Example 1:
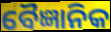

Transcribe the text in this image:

ବୈଜ୍ଞାନିକ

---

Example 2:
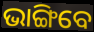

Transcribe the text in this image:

ଭାଙ୍ଗିବେ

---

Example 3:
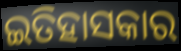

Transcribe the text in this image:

ଇତିହାସକାର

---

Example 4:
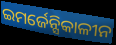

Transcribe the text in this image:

ଇମର୍ଜେନ୍ସିକାଳୀନ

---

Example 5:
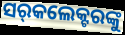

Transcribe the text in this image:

ସର୍‌କଲେକ୍ଟରଙ୍କୁ